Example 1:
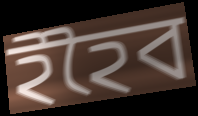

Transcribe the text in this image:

ইহৈব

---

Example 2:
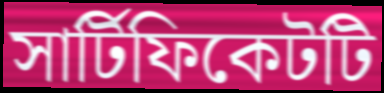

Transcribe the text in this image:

সার্টিফিকেটটি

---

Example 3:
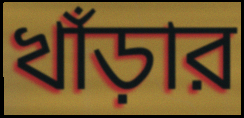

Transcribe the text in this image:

খাঁড়ার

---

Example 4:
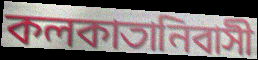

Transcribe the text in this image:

কলকাতানিবাসী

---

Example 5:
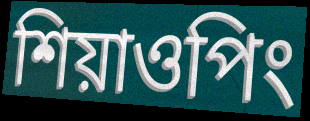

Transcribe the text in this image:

শিয়াওপিং